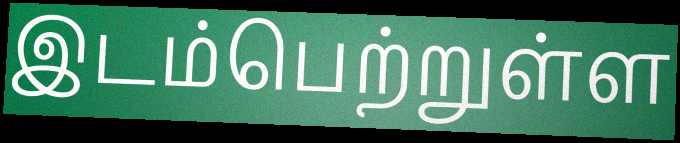
இடம்பெற்றுள்ள